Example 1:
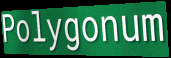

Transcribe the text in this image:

Polygonum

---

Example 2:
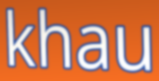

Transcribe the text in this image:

khau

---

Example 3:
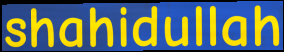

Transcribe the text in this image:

shahidullah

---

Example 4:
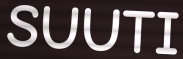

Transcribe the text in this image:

SUUTI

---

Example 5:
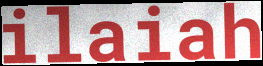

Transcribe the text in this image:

ilaiah